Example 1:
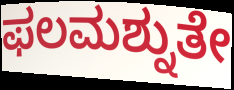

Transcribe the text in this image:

ಫಲಮಶ್ನುತೇ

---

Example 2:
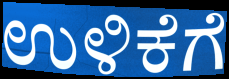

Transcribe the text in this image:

ಉಳಿಕೆಗೆ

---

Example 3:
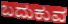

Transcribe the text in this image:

ಬದುಕುವ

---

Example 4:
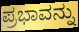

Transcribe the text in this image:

ಪ್ರಭಾವನ್ನು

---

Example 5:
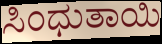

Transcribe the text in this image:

ಸಿಂಧುತಾಯಿ